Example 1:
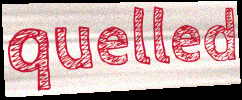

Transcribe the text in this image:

quelled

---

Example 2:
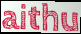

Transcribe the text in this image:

aithu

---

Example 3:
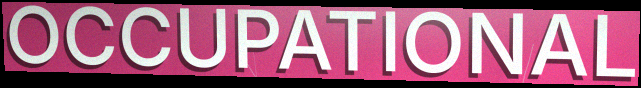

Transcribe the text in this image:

OCCUPATIONAL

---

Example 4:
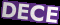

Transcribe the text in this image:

DECE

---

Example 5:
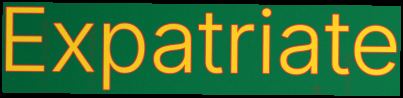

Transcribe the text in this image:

Expatriate